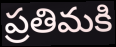
ప్రతిమకి